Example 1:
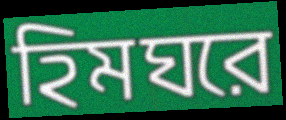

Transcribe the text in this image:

হিমঘরে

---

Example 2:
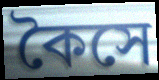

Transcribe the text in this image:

কৈসে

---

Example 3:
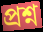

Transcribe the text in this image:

প্রশ্ন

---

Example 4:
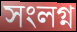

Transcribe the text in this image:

সংলগ্ন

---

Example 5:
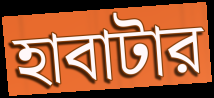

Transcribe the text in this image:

হাবাটার